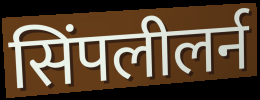
सिंपलीलर्न